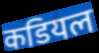
कडियल